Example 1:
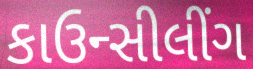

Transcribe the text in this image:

કાઉન્સીલીંગ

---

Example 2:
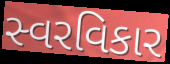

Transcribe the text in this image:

સ્વરવિકાર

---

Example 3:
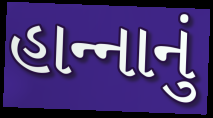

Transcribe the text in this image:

હાન્‍નાનું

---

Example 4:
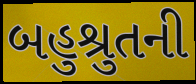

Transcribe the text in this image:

બહુશ્રુતની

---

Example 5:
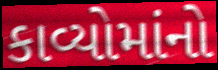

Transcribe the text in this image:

કાવ્યોમાંનો